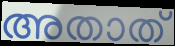
അതാത്